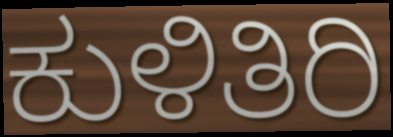
ಕುಳಿತಿರಿ